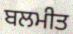
ਬਲਮੀਤ